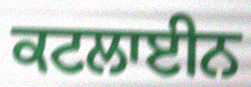
ਕਟਲਾਈਨ